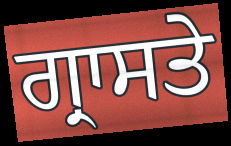
ਗ੍ਰਾਸਤੇ